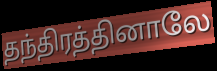
தந்திரத்தினாலே